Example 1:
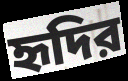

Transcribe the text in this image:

হৃদির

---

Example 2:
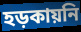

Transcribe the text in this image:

হড়কায়নি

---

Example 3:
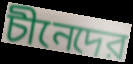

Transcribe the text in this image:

চীনেদের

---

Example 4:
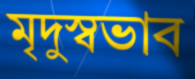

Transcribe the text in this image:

মৃদুস্বভাব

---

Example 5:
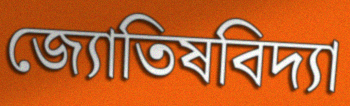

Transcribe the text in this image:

জ্যোতিষবিদ্যা